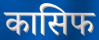
कासिफ